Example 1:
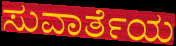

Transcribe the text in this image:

ಸುವಾರ್ತೆಯ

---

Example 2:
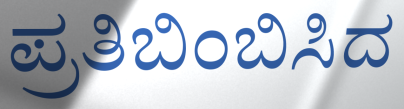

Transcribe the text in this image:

ಪ್ರತಿಬಿಂಬಿಸಿದ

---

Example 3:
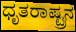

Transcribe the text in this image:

ಧೃತರಾಷ್ಟ್ರನ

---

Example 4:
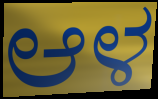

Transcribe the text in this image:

ಆಳ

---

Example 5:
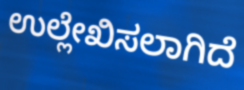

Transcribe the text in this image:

ಉಲ್ಲೇಖಿಸಲಾಗಿದೆ